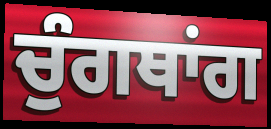
ਚੁੰਗਥਾਂਗ